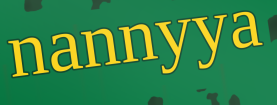
nannyya